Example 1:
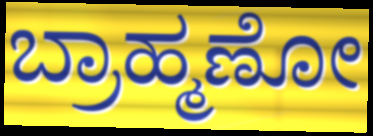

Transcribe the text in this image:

ಬ್ರಾಹ್ಮಣೋ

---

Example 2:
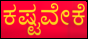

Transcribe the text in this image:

ಕಷ್ಟವೇಕೆ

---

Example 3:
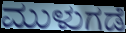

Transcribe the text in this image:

ಮುಳುಗಡೆ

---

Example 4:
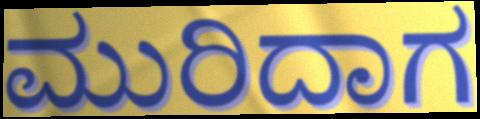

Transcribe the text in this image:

ಮುರಿದಾಗ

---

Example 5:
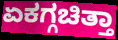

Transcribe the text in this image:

ಏಕಗ್ಗಚಿತ್ತಾ